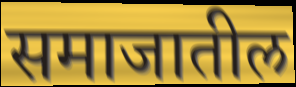
समाजातील